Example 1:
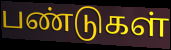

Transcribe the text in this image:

பண்டுகள்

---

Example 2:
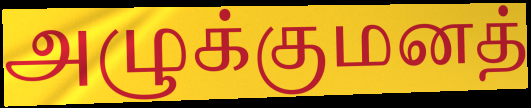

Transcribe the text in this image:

அழுக்குமனத்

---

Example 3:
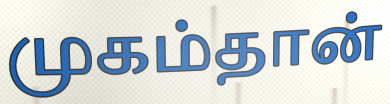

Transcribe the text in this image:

முகம்தான்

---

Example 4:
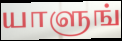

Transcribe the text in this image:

யாளுங்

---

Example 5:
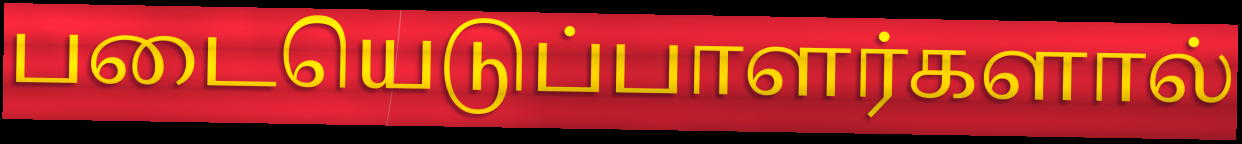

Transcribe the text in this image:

படையெடுப்பாளர்களால்